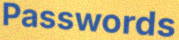
Passwords